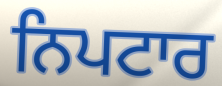
ਨਿਪਟਾਰ